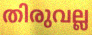
തിരുവല്ല